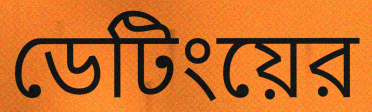
ডেটিংয়ের